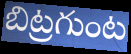
బిట్రగుంట